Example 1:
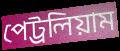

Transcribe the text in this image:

পেট্রলিয়াম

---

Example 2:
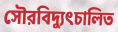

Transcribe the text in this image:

সৌরবিদ্যুৎচালিত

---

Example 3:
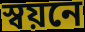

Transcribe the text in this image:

স্বয়নে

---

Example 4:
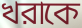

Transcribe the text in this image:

খরাকে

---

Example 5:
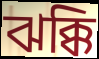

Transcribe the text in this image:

ঝক্কি